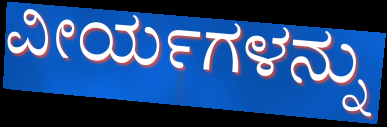
ವೀರ್ಯಗಳನ್ನು